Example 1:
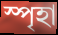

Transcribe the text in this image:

স্পৃহা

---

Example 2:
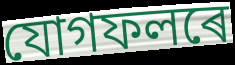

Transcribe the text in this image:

যোগফলৰে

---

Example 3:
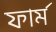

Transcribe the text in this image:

ফাৰ্ম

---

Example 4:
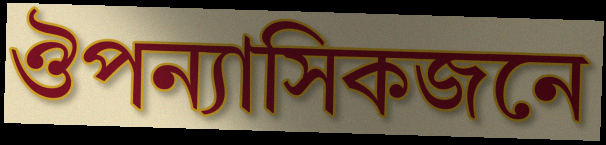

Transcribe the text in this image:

ঔপন্যাসিকজনে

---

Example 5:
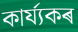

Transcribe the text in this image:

কাৰ্য্যকৰ